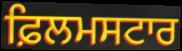
ਫ਼ਿਲਮਸਟਾਰ